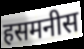
हसमनीस